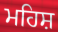
ਮਹਿਸ਼